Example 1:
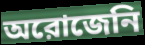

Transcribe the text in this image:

অরোজেনি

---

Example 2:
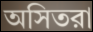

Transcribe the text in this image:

অসিতরা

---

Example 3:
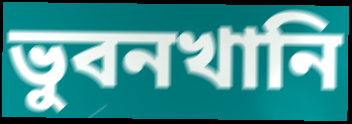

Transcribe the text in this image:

ভুবনখানি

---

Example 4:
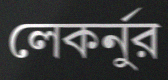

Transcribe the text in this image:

লেকর্নুর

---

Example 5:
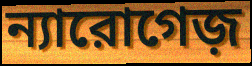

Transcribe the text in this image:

ন্যারোগেজ়